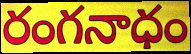
రంగనాధం